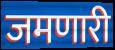
जमणारी